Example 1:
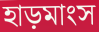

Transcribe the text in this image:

হাড়মাংস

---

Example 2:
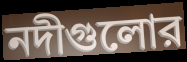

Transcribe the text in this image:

নদীগুলোর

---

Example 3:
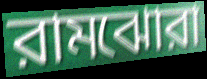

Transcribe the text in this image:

রামঝোরা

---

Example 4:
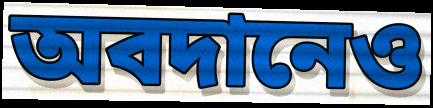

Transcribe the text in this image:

অবদানেও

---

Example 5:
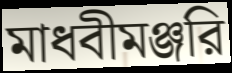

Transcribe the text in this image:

মাধবীমঞ্জরি